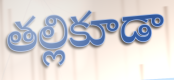
తల్లికూడా